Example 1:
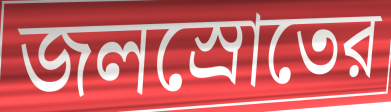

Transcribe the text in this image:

জলস্রোতের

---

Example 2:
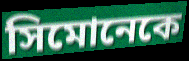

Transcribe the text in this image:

সিমোনেকে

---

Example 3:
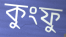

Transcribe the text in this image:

কুংফু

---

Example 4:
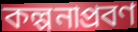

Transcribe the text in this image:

কল্পনাপ্রবণ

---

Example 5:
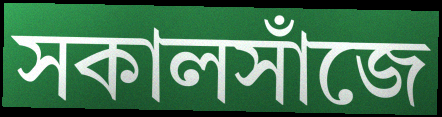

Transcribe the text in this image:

সকালসাঁজে